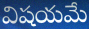
విషయమే